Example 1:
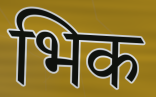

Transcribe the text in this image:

भिक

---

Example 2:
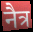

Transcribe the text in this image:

नैत्र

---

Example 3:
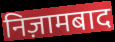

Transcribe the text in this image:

निज़ामबाद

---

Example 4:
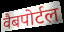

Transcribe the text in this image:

वैबपोर्टल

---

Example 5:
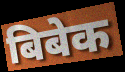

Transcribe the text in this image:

बिबेक